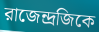
রাজেন্দ্রজিকে